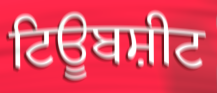
ਟਿਊਬਸ਼ੀਟ